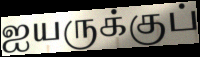
ஐயருக்குப்